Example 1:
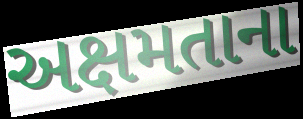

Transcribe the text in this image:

અક્ષમતાના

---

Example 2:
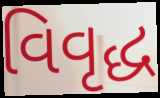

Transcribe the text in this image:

વિવૃદ્ધ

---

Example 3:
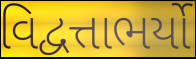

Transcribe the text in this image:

વિદ્વત્તાભર્યો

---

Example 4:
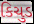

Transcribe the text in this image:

કિચુડ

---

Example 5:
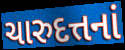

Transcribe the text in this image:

ચારુદત્તનાં